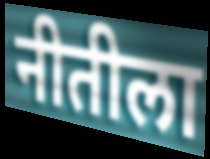
नीतीला